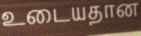
உடையதான